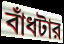
বাঁধটার